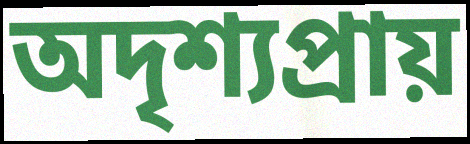
অদৃশ্যপ্ৰায়